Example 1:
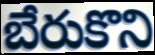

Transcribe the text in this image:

బేరుకొని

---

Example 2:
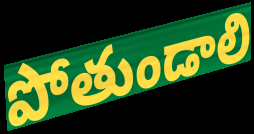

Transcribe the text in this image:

పోతుండాలి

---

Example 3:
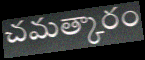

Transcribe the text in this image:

చమత్కారం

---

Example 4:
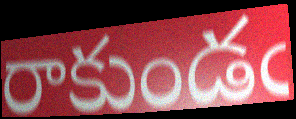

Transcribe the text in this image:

రాకుండఁ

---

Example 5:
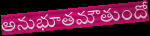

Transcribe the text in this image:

అనుభూతమౌతుందో